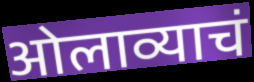
ओलाव्याचं